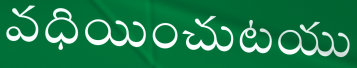
వధియించుటయు